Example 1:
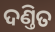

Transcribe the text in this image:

ଦଣ୍ତିତ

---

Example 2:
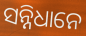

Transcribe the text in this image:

ସନ୍ନିଧାନେ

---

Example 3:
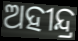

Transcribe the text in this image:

ଅହୀନ୍ଦ୍ର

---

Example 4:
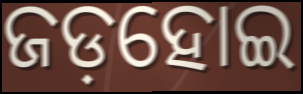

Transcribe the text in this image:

ଜଡ଼ହୋଇ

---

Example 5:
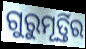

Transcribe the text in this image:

ଗୁରୁମୂର୍ତ୍ତିର